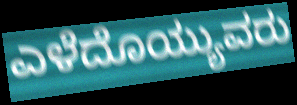
ಎಳೆದೊಯ್ಯುವರು